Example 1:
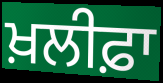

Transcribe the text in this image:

ਖ਼ਲੀਫ਼ਾ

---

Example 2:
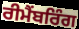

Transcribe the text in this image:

ਰੀਮੈਂਬਰਿੰਗ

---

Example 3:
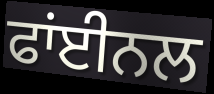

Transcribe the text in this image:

ਫਾਂਈਨਲ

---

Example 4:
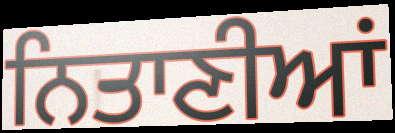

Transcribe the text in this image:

ਨਿਤਾਣੀਆਂ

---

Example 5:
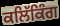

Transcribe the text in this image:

ਕਲਿੱਕਿੰਗ